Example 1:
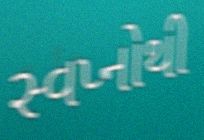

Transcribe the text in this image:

સ્વપ્નોથી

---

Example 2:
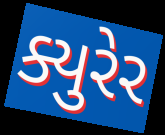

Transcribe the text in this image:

ક્યુરેર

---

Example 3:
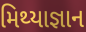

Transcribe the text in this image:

મિથ્યાજ્ઞાન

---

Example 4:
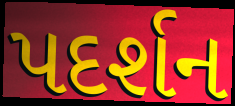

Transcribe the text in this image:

પદર્શન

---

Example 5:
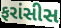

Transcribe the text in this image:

ફરાંસીસ